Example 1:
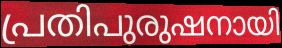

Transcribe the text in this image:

പ്രതിപുരുഷനായി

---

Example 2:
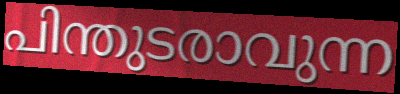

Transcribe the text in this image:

പിന്തുടരാവുന്ന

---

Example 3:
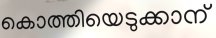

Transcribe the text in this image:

കൊത്തിയെടുക്കാന്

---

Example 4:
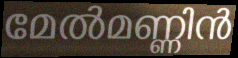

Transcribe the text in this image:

മേൽമണ്ണിൻ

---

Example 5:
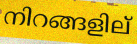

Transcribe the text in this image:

നിറങ്ങളില്